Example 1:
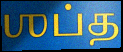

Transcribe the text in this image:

ஶப்த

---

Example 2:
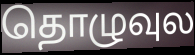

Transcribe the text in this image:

தொழுவுல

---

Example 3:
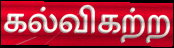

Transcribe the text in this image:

கல்விகற்ற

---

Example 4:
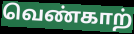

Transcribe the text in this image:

வெண்காற்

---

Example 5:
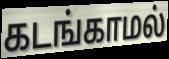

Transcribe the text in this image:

கடங்காமல்